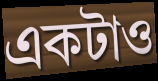
একটাও